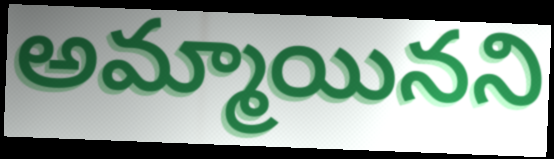
అమ్మాయినని